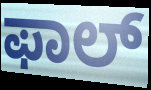
ಫಾಲ್